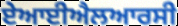
ਏਆਈਐਲਆਰਸੀ